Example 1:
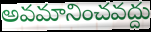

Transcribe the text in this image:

అవమానించవద్దు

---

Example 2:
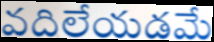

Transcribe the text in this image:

వదిలేయడమే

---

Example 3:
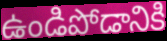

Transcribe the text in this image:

ఉండిపోడానికి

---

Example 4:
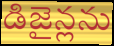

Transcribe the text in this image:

డిజైన్లను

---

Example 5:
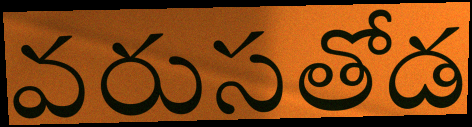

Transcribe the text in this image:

వరుసతోడ